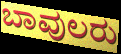
ಬಾವುಲರು